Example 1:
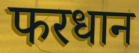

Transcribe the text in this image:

फरधान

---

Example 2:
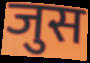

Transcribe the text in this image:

जुस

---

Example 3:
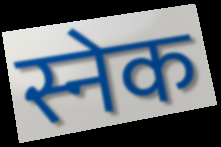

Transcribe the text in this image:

स्‍नेक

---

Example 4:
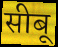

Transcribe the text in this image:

सीबू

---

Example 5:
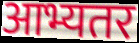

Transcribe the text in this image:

आभ्यतर